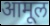
आमूल